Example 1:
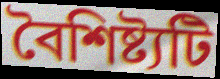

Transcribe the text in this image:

বৈশিষ্ট্যটি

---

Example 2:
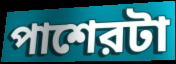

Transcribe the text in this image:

পাশেরটা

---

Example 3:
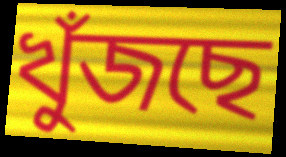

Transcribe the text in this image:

খুঁজছে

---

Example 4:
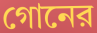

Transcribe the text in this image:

গোনের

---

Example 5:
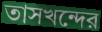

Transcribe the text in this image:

তাসখন্দের